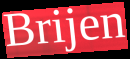
Brijen